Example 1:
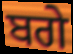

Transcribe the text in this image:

ਬਗੇ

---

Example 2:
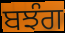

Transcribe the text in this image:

ਬਝੰਗ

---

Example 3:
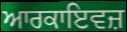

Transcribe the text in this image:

ਆਰਕਾਇਵਜ਼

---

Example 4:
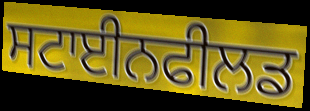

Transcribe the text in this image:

ਸਟਾਈਨਫੀਲਡ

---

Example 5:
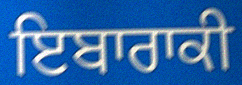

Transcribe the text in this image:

ਇਬਾਰਾਕੀ